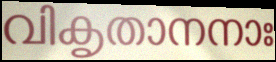
വികൃതാനനാഃ